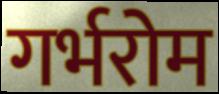
गर्भरोम